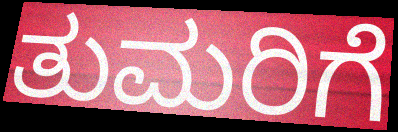
ತುಮರಿಗೆ